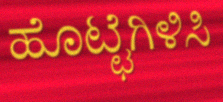
ಹೊಟ್ಟೆಗಿಳಿಸಿ